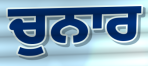
ਚੁਨਾਰ